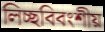
লিচ্ছবিবংশীয়